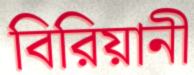
বিরিয়ানী